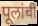
पूलांची